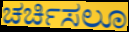
ಚರ್ಚಿಸಲೂ